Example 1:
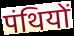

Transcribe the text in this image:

पंथियों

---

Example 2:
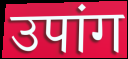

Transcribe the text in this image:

उपांग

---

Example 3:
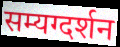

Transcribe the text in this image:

सम्‍यग्‍दर्शन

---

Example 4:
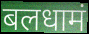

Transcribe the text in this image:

बलधामं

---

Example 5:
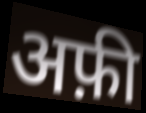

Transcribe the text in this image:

अफ़ी